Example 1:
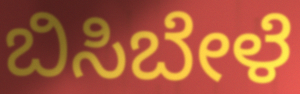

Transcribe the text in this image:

ಬಿಸಿಬೇಳೆ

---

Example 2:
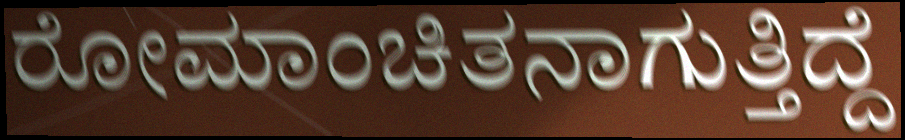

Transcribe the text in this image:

ರೋಮಾಂಚಿತನಾಗುತ್ತಿದ್ದೆ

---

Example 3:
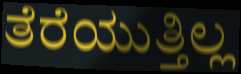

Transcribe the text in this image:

ತೆರೆಯುತ್ತಿಲ್ಲ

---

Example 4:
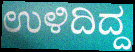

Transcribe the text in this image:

ಉಳಿದಿದ್ದ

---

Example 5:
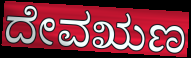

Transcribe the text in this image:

ದೇವಋಣ